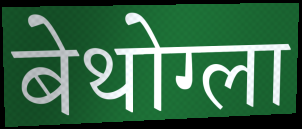
बेथोग्ला